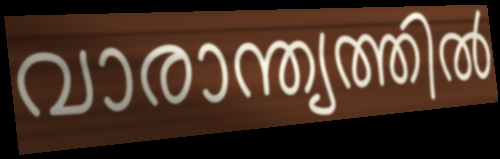
വാരാന്ത്യത്തിൽ